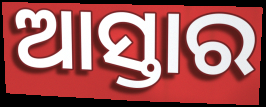
ଆସ୍ତାର